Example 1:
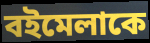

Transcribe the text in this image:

বইমেলাকে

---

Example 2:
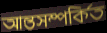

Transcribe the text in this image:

আন্তসম্পর্কিত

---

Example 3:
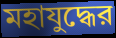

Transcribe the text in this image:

মহাযুদ্ধের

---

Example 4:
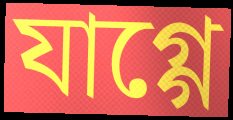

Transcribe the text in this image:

যাগ্গে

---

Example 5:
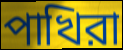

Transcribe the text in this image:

পাখিরা